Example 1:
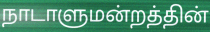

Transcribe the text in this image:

நாடாளுமன்றத்தின்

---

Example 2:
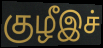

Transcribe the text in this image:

குழீஇச்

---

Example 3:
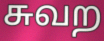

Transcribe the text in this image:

சுவற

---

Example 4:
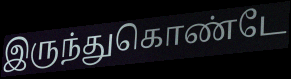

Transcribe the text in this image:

இருந்துகொண்டே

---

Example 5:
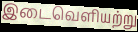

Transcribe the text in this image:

இடைவெளியற்று